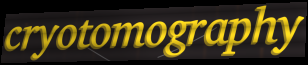
cryotomography